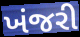
ખંજરી